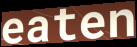
eaten